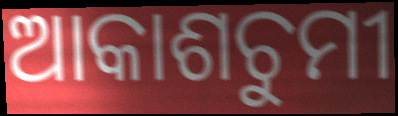
ଆକାଶଚୁମୀ